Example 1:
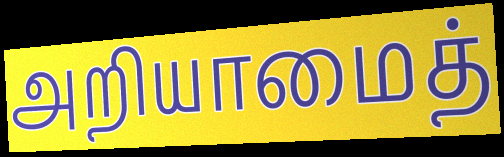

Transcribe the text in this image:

அறியாமைத்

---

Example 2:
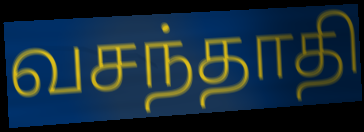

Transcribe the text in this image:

வசந்தாதி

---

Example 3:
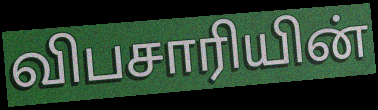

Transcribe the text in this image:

விபசாரியின்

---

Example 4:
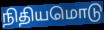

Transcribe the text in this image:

நிதியமொடு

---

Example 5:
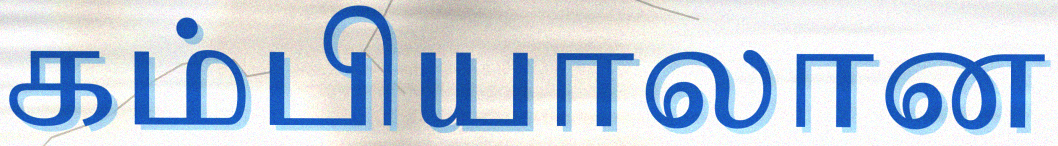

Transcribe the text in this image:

கம்பியாலான